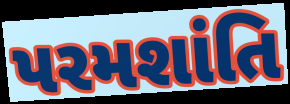
પરમશાંતિ